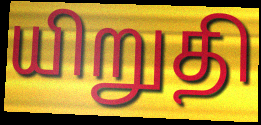
யிறுதி